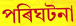
পৰিঘটনা